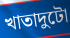
খাতাদুটো